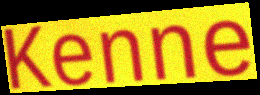
Kenne